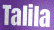
Talila